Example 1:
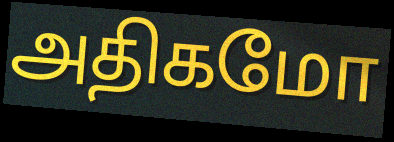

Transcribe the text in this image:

அதிகமோ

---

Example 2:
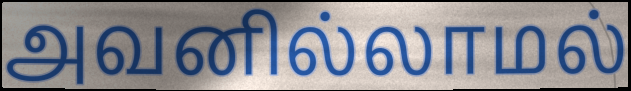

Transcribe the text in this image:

அவனில்லாமல்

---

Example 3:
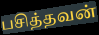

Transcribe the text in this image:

பசித்தவன்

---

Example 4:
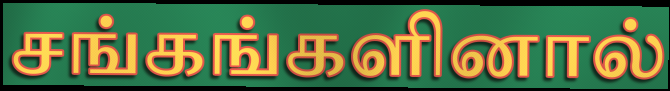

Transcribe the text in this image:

சங்கங்களினால்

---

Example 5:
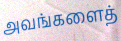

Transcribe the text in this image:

அவங்களைத்